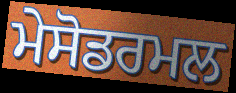
ਮੇਸੋਡਰਮਲ